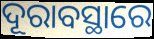
ଦୂରାବସ୍ଥାରେ